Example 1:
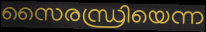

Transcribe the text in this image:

സൈരന്ധ്രിയെന്ന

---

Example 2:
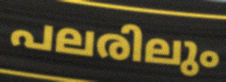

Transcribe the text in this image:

പലരിലും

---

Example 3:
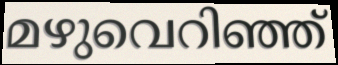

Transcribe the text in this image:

മഴുവെറിഞ്ഞ്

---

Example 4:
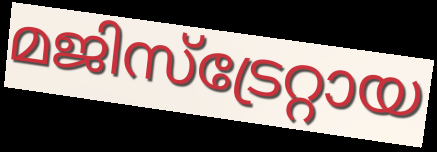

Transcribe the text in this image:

മജിസ്ട്രേറ്റായ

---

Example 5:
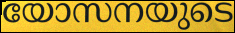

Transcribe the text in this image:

യോസനയുടെ